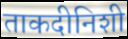
ताकदीनिशी